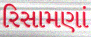
રિસામણાં